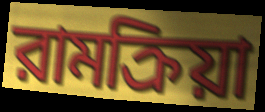
রামক্রিয়া